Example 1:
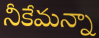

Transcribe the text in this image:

నీకేమన్నా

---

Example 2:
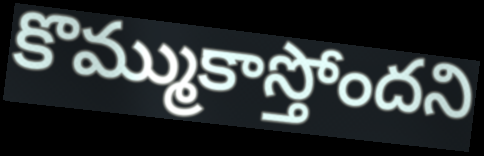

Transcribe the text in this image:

కొమ్ముకాస్తోందని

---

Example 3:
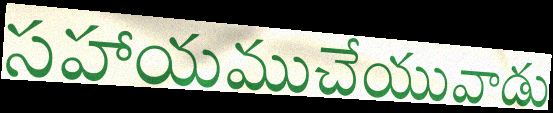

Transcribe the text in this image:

సహాయముచేయువాడు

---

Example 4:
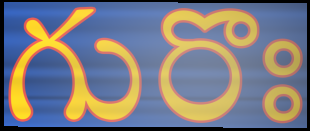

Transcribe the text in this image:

గురొః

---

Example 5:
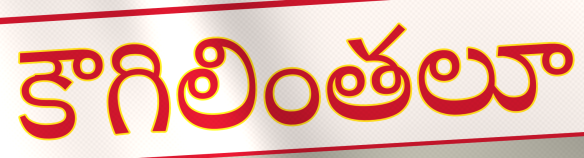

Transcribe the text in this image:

కౌగిలింతలూ